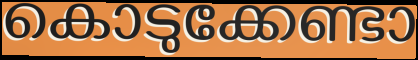
കൊടുക്കേണ്ടാ